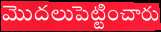
మొదలుపెట్టించారు